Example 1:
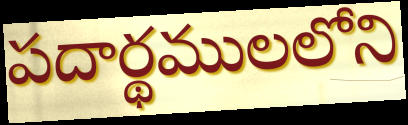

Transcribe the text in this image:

పదార్థములలోని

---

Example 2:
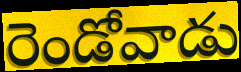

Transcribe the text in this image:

రెండోవాడు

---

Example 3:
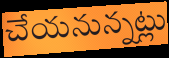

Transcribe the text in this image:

చేయనున్నట్లు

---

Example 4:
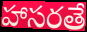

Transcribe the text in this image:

హాసరతే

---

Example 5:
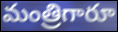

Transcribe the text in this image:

మంత్రిగారూ